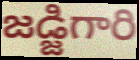
జడ్జిగారి